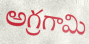
అగ్రగామి